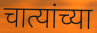
चात्यांच्या